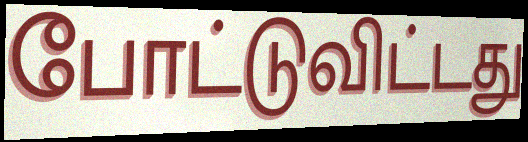
போட்டுவிட்டது